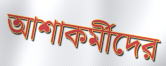
আশাকর্মীদের